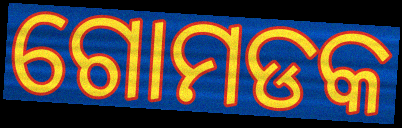
ଗୋମଡକ